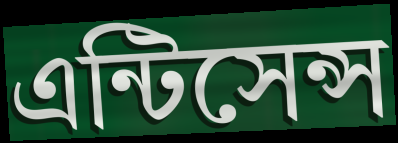
এন্টিসেন্স